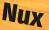
Nux